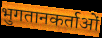
भुगतानकर्ताओं